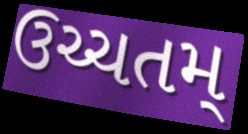
ઉચ્ચતમ્